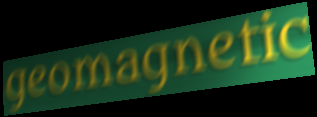
geomagnetic